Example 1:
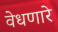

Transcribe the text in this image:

वेधणारे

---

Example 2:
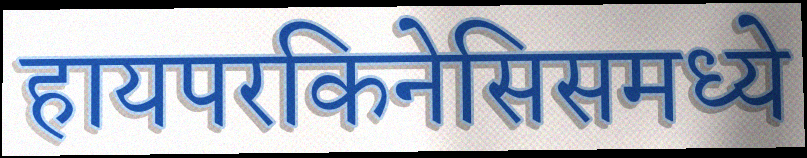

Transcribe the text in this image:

हायपरकिनेसिसमध्ये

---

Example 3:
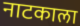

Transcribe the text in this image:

नाटकाला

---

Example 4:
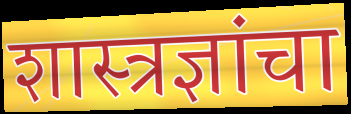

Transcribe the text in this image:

शास्त्रज्ञांचा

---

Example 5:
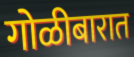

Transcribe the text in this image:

गोळीबारात